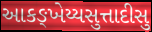
આકઙ્ખેય્યસુત્તાદીસુ